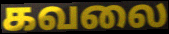
கவலை